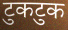
टुकटुक